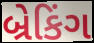
બ્રેકિંગ